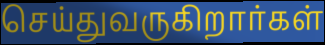
செய்துவருகிறார்கள்